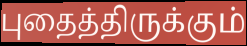
புதைத்திருக்கும்